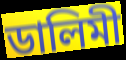
ডালিমী